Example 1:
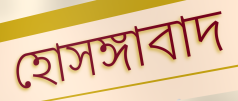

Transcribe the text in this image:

হোসঙ্গাবাদ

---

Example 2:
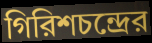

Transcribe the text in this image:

গিরিশচন্দ্রের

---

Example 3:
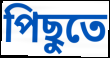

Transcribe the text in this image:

পিছুতে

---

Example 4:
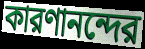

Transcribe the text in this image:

কারণানন্দের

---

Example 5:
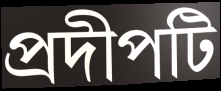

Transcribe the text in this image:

প্রদীপটি